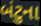
બંટુના